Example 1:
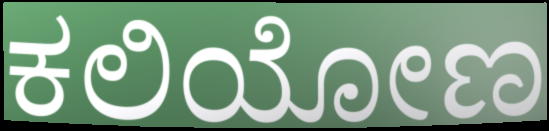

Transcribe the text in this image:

ಕಲಿಯೋಣ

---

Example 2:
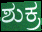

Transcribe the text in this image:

ಶುಕ್ರ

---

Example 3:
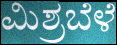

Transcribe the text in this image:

ಮಿಶ್ರಬೆಳೆ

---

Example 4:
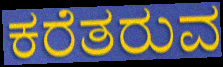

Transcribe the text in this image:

ಕರೆತರುವ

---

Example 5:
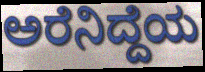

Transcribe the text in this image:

ಅರೆನಿದ್ದೆಯ